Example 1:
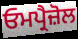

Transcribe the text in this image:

ਓਮਪ੍ਰੈਜ਼ੋਲ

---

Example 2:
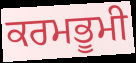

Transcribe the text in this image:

ਕਰਮਭੂਮੀ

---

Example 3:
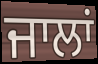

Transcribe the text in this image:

ਜਾਲਾਂ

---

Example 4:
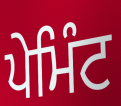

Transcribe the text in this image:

ਪੇਮਿੰਟ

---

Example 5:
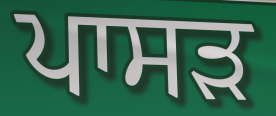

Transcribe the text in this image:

ਪਾਸੜ